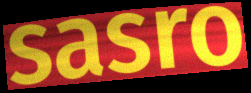
sasro